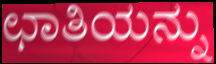
ಛಾತಿಯನ್ನು